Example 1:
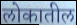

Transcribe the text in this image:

लोकातील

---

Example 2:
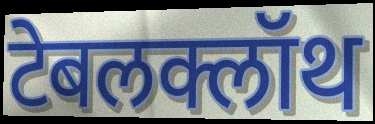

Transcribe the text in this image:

टेबलक्लॉथ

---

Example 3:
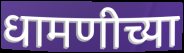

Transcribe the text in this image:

धामणीच्या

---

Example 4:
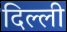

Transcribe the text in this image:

दिल्‍ली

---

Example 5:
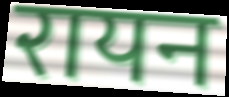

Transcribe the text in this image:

रायन